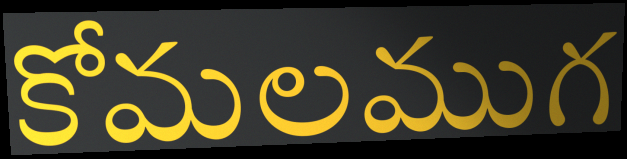
కోమలముగ